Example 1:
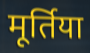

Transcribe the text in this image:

मूर्तिया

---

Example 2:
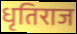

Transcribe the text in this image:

धृतिराज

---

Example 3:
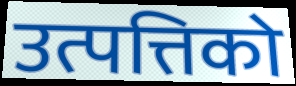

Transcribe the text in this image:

उत्पत्तिको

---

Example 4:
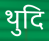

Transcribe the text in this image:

थुदि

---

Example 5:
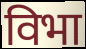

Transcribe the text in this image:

विभा